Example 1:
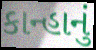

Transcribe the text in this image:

કાન્હાનું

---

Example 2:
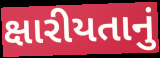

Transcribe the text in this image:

ક્ષારીયતાનું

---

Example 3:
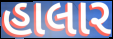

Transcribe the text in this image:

હાલાર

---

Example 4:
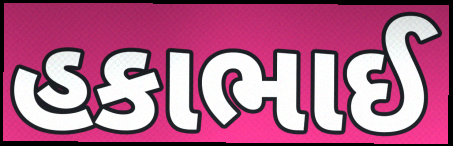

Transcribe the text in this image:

હકાભાઈ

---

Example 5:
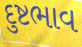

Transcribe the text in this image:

દુષ્ટભાવ